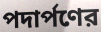
পদার্পণের